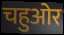
चहुओर